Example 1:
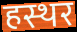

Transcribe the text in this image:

हस्थर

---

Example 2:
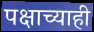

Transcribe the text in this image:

पक्षाच्याही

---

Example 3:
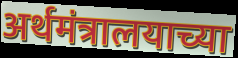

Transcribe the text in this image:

अर्थमंत्रालयाच्या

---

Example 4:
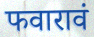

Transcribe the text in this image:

फवारावं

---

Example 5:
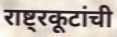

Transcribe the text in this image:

राष्ट्रकूटांची